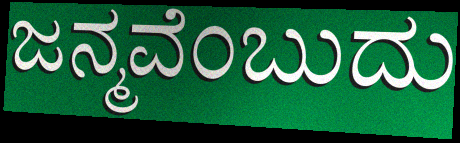
ಜನ್ಮವೆಂಬುದು